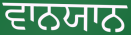
ਵਾਨਯਾਨ